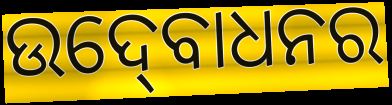
ଉଦ୍‍ବୋଧନର